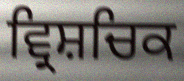
ਵ੍ਰਿਸ਼ਚਿਕ